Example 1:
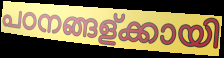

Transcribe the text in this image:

പഠനങ്ങള്ക്കായി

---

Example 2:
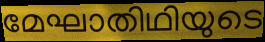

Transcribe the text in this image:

മേഘാതിഥിയുടെ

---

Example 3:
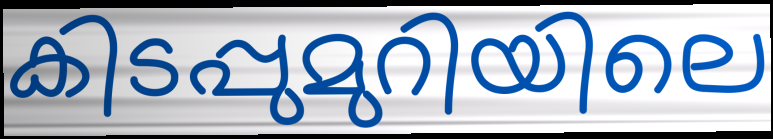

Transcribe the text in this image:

കിടപ്പുമുറിയിലെ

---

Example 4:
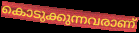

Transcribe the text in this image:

കൊടുക്കുന്നവരാണ്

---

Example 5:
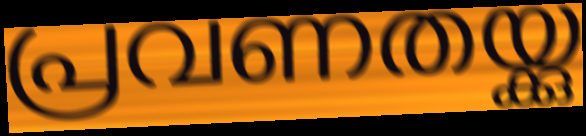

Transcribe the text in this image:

പ്രവണതയ്ക്കു